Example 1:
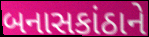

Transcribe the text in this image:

બનાસકાંઠાને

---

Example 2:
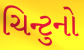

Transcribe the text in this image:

ચિન્ટુનો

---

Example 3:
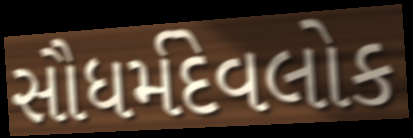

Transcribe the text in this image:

સૌધર્મદેવલોક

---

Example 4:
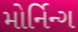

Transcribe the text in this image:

મોર્નિન્ગ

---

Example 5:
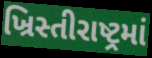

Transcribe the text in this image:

ખ્રિસ્તીરાષ્ટ્રમાં